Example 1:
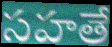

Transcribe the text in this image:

సహతే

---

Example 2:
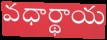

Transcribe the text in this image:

వధార్థాయ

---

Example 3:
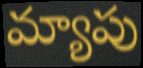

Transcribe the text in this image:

మ్యాపు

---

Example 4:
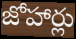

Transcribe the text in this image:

జోహార్లు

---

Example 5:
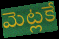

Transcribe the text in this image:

మెట్లకే